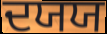
ਦਯਯ